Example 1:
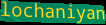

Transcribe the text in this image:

lochaniyan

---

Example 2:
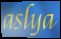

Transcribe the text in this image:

aslya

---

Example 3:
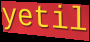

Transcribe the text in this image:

yetil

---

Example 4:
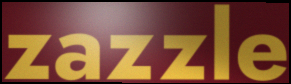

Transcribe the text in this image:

zazzle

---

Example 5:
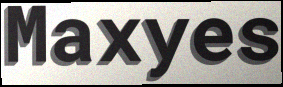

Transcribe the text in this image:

Maxyes